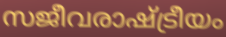
സജീവരാഷ്ട്രീയം